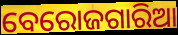
ବେରୋଜଗାରିଆ